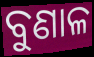
ବୁଣାଳ